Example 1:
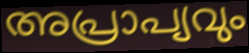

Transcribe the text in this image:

അപ്രാപ്യവും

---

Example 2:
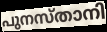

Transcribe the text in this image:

പുനസ്താനി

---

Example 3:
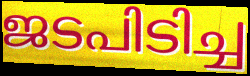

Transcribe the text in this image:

ജടപിടിച്ച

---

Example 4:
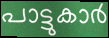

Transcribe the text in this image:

പാട്ടുകാർ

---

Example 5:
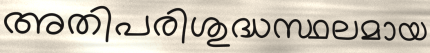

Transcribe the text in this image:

അതിപരിശുദ്ധസ്ഥലമായ